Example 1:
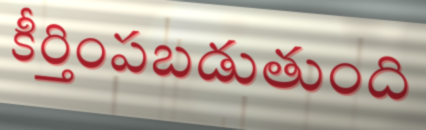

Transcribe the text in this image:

కీర్తింపబడుతుంది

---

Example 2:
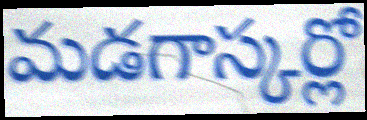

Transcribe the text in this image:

మడగాస్కర్లో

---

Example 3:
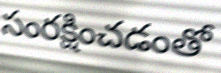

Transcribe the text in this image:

సంరక్షించడంతో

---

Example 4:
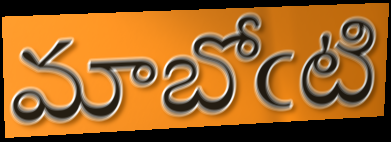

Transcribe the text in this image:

మాబోఁటి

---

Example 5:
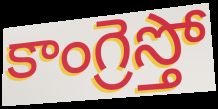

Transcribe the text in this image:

కాంగ్రెస్తో